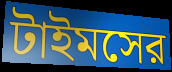
টাইমসের